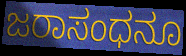
ಜರಾಸಂಧನೂ